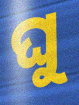
ଘୁ